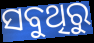
ସବୁଥିରୁ